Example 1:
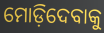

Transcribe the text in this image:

ମୋଡ଼ିଦେବାକୁ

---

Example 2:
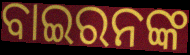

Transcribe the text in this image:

ବାଇରନଙ୍କ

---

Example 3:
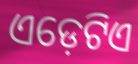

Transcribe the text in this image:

ଏଡ଼େଟିଏ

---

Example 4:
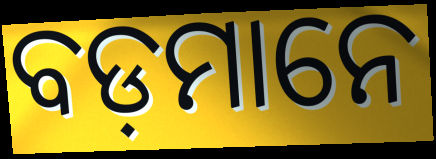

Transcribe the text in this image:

ବଡ଼ମାନେ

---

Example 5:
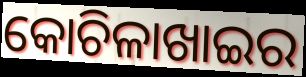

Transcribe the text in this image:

କୋଚିଳାଖାଇର